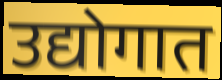
उद्योगात